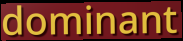
dominant